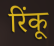
रिंकू